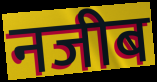
नजीब